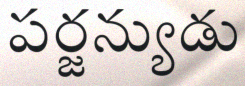
పర్జన్యుడు